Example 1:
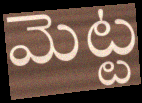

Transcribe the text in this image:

మెట్ట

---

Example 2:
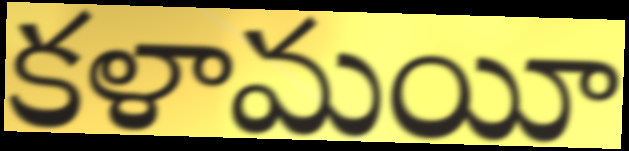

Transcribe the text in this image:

కళామయీ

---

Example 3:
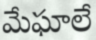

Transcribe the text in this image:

మేఘాలే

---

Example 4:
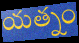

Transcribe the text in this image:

యత్నం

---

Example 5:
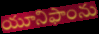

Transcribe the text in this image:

యూనిఫాంను